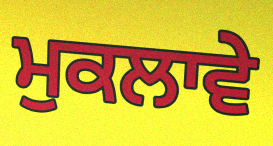
ਮੁਕਲਾਵੇ